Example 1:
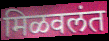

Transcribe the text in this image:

मिळवलंत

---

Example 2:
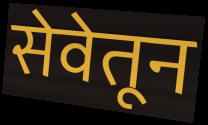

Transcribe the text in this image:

सेवेतून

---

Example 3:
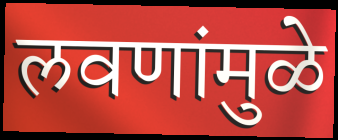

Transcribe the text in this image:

लवणांमुळे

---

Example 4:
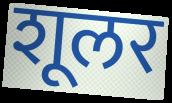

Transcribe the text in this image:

शूलर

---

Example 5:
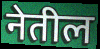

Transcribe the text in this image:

नेतील